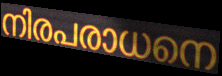
നിരപരാധനെ